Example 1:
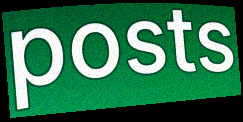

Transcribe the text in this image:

posts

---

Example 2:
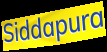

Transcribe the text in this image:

Siddapura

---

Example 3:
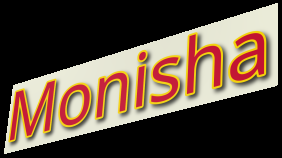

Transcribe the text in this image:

Monisha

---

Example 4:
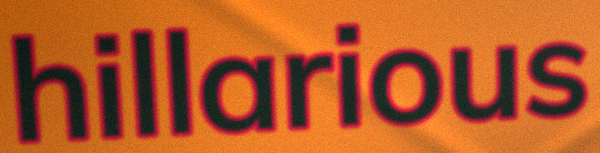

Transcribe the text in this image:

hillarious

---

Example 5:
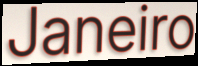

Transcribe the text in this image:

Janeiro